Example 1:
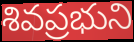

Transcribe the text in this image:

శివప్రభుని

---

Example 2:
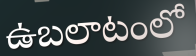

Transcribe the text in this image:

ఉబలాటంలో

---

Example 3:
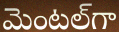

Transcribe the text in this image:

మెంటల్‌గా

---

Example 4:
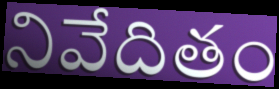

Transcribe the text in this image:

నివేదితం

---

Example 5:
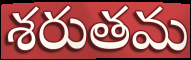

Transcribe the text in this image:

శరుతమ